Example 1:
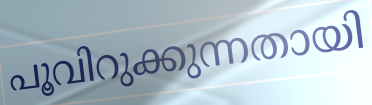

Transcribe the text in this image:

പൂവിറുക്കുന്നതായി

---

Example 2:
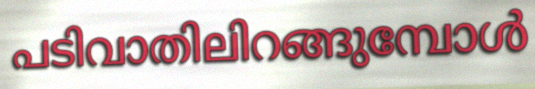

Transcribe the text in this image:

പടിവാതിലിറങ്ങുമ്പോൾ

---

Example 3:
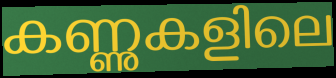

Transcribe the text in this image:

കണ്ണുകളിലെ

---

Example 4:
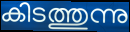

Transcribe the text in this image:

കിടത്തുന്നു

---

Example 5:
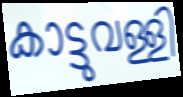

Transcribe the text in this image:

കാട്ടുവള്ളി